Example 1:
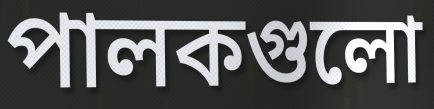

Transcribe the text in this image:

পালকগুলো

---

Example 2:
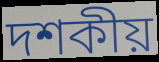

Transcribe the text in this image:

দশকীয়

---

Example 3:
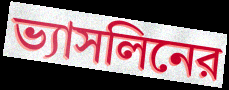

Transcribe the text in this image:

ভ্যাসলিনের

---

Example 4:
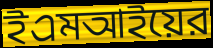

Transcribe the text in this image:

ইএমআইয়ের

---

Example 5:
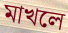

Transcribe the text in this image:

মাখলে